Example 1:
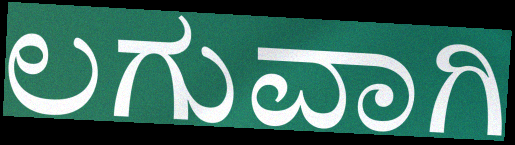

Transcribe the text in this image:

ಲಗುವಾಗಿ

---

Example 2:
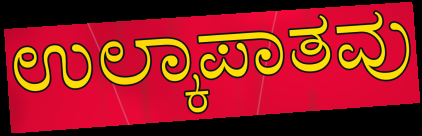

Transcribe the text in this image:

ಉಲ್ಕಾಪಾತವು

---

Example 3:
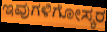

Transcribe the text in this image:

ಇವುಗಳಿಗೋಸ್ಕರ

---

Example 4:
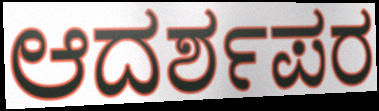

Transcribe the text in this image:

ಆದರ್ಶಪರ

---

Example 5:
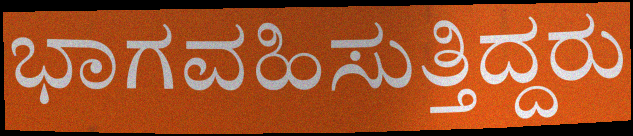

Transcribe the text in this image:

ಭಾಗವಹಿಸುತ್ತಿದ್ದರು